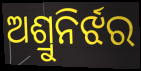
ଅଶ୍ରୁନିର୍ଝର